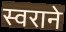
स्वराने